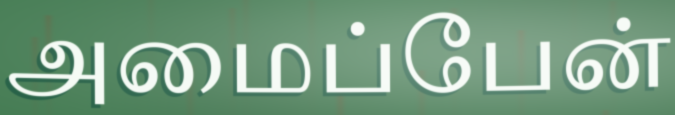
அமைப்பேன்